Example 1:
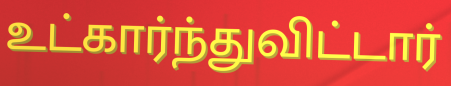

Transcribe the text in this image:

உட்கார்ந்துவிட்டார்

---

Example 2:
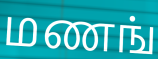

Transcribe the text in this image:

மணங்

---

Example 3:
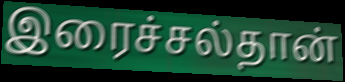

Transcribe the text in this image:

இரைச்சல்தான்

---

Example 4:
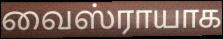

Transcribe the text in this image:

வைஸ்ராயாக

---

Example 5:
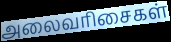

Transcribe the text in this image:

அலைவரிசைகள்